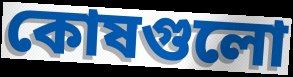
কোষগুলো